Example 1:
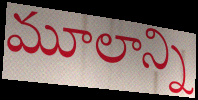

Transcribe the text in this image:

మూలాన్ని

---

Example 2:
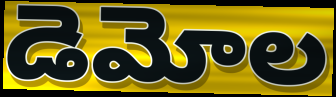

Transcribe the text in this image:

డెమోల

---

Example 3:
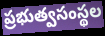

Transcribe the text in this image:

ప్రభుత్వసంస్థల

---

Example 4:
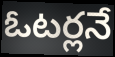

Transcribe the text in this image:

ఓటర్లనే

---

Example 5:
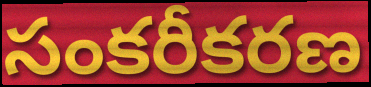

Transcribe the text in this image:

సంకరీకరణ